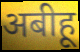
अबीहू